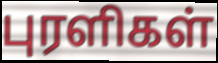
புரளிகள்